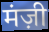
मंज़ी